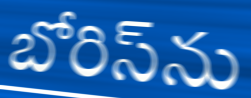
బోరిస్‌ను